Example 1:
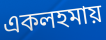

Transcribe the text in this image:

একলহমায়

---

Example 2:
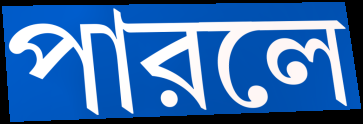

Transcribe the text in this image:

পারলে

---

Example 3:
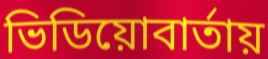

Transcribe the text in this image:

ভিডিয়োবার্তায়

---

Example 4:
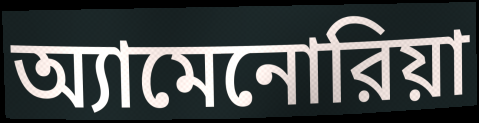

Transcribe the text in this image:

অ্যামেনোরিয়া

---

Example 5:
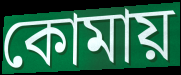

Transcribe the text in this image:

কোমায়